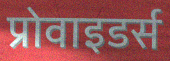
प्रोवाइडर्स